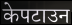
केपटाउन